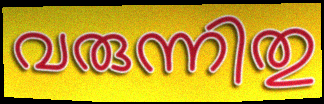
വരുന്നിതു